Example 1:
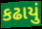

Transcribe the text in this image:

કઢાયું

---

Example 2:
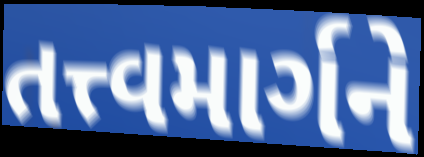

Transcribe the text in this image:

તત્ત્વમાર્ગને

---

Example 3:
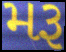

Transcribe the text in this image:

મરૂ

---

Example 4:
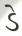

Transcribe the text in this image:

ડે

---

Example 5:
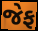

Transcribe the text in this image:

જેફ